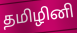
தமிழினி